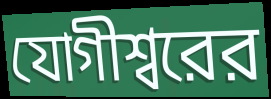
যোগীশ্বরের